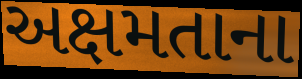
અક્ષમતાના